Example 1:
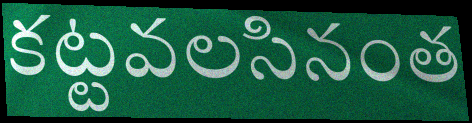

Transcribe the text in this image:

కట్టవలసినంత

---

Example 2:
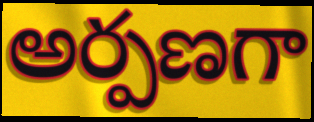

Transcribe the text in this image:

అర్పణగా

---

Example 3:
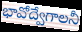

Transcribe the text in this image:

భావోద్వేగాలనీ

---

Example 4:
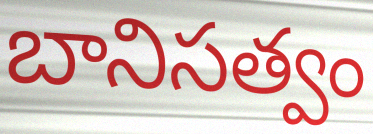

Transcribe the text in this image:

బానిసత్వం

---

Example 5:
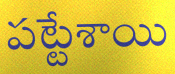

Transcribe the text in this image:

పట్టేశాయి